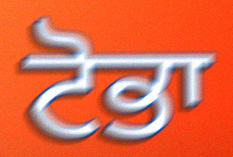
ਟੋਭਾ